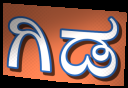
ಗಿಡ